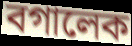
বগালেক